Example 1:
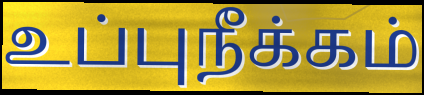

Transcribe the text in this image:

உப்புநீக்கம்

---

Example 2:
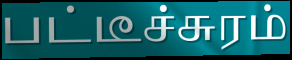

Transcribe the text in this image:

பட்டீச்சுரம்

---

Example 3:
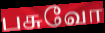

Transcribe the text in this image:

பசுவோ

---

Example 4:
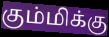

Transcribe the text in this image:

கும்மிக்கு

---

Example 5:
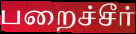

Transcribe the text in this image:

பறைச்சீர்